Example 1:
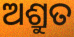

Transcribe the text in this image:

ଅଶ୍ରୁତ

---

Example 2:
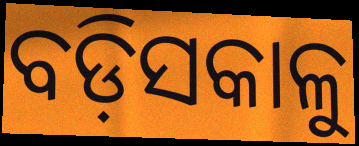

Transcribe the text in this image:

ବଡ଼ିସକାଳୁ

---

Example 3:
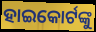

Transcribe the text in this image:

ହାଇକୋର୍ଟଙ୍କୁ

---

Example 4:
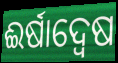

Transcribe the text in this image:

ଈର୍ଷାଦ୍ଵେଷ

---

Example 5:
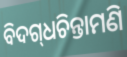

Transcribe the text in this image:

ବିଦଗ୍‌ଧଚିନ୍ତାମଣି